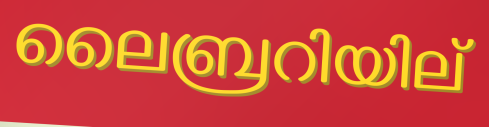
ലൈബ്രറിയില്